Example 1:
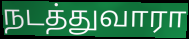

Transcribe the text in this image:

நடத்துவாரா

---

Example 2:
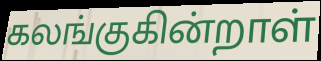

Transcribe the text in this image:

கலங்குகின்றாள்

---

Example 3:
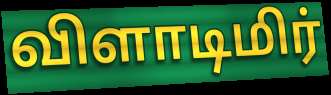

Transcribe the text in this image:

விளாடிமிர்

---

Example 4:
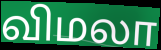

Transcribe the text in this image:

விமலா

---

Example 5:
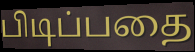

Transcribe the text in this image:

பிடிப்பதை